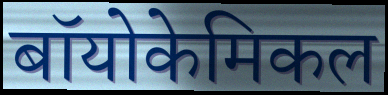
बॉयोकेमिकल